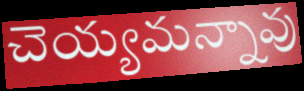
చెయ్యమన్నావు